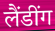
लैंडींग